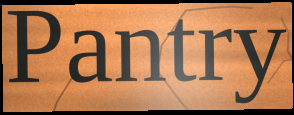
Pantry